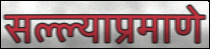
सल्ल्याप्रमाणे